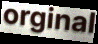
orginal